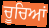
ਚੂਚਿਆਂ